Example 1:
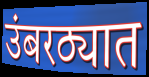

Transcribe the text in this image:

उंबरठ्यात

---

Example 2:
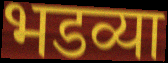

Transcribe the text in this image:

भडव्या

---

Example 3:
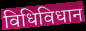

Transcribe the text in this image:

विधिविधान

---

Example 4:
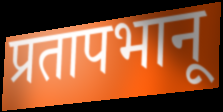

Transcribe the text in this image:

प्रतापभानू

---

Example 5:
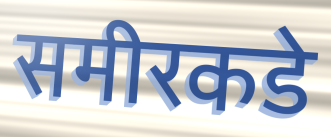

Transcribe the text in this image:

समीरकडे